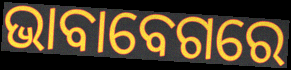
ଭାବାବେଗରେ